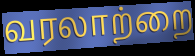
வரலாற்றை